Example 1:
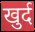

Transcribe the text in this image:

खुर्द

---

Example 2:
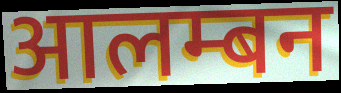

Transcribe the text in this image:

आलम्बन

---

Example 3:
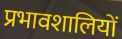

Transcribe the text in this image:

प्रभावशालियों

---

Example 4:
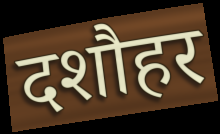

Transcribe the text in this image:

दशौहर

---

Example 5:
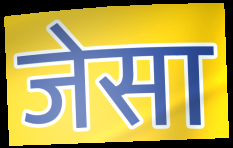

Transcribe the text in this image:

जेसा